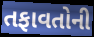
તફાવતોની